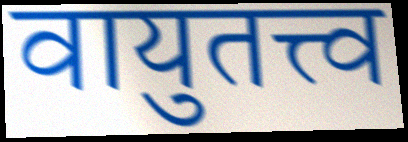
वायुतत्त्व